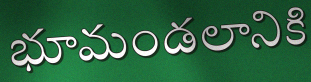
భూమండలానికి